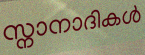
സ്നാനാദികൾ